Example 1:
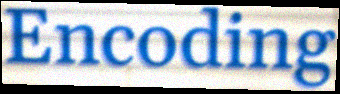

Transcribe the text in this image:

Encoding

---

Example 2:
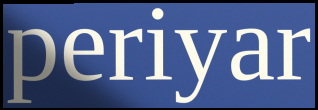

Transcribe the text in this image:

periyar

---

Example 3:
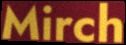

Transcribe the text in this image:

Mirch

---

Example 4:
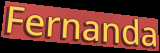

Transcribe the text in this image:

Fernanda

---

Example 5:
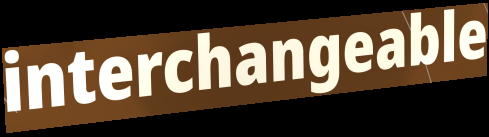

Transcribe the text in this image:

interchangeable